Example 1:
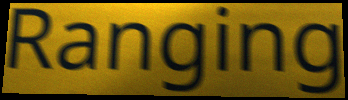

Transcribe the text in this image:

Ranging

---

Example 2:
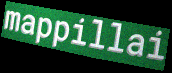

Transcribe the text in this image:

mappillai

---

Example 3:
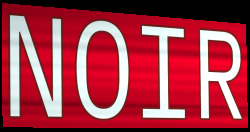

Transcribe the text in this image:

NOIR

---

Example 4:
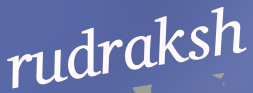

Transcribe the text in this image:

rudraksh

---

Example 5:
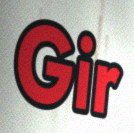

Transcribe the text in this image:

Gir